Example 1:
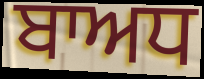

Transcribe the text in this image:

ਬਾਅਧ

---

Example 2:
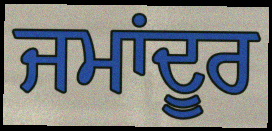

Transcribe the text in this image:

ਜਮਾਂਦੂਰ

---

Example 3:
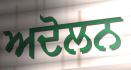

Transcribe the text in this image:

ਅਦੋਲਨ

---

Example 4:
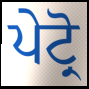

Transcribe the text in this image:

ਪੇਟ੍ਰੋ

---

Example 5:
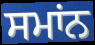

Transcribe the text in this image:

ਸਮਾਂਨ